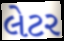
લેટર